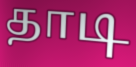
தாடி